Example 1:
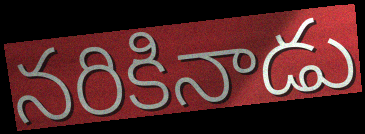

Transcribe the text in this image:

నరికినాడు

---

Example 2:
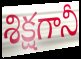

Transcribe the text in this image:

శిక్షగానీ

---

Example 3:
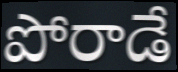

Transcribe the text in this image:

పోరాడే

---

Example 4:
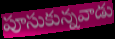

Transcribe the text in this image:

పూసుకున్నవాడు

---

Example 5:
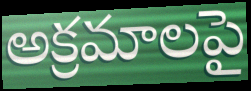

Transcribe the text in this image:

అక్రమాలపై